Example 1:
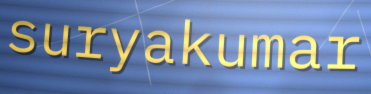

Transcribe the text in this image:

suryakumar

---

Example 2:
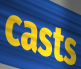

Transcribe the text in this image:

casts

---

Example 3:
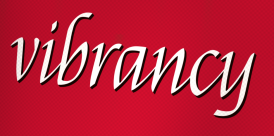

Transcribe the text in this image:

vibrancy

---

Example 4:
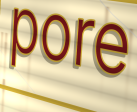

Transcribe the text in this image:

pore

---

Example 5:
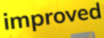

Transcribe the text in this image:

improved